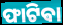
ଫାଟିଵା